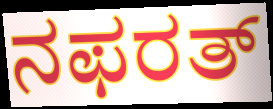
ನಫರತ್